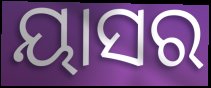
ୟାସର